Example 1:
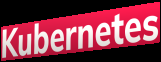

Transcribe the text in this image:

Kubernetes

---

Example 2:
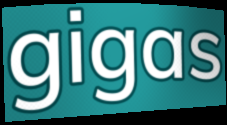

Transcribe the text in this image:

gigas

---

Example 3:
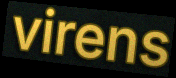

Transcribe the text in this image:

virens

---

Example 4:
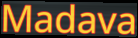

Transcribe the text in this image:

Madava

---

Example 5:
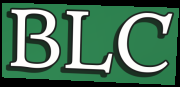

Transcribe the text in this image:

BLC